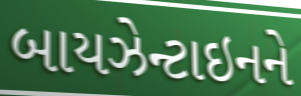
બાયઝેન્ટાઇનને